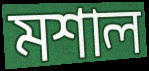
মশাল